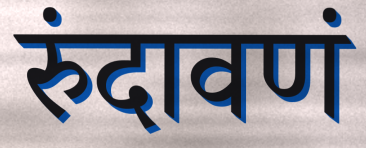
रुंदावणं